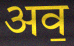
अव॒